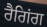
ਰੈਗਿਂਗ